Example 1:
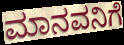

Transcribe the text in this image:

ಮಾನವನಿಗೆ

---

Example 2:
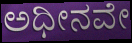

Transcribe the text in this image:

ಅಧೀನವೇ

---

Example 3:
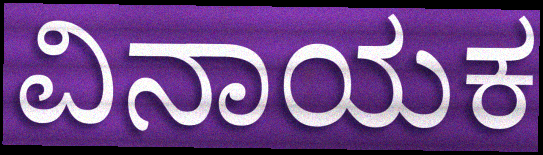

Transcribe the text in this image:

ವಿನಾಯಕ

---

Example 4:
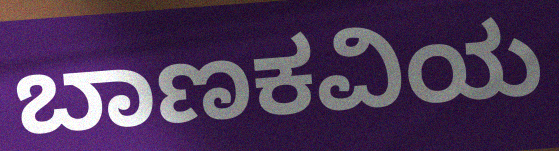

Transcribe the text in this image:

ಬಾಣಕವಿಯ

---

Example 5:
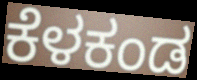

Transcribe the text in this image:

ಕೆಳಕಂಡ